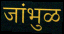
जांभुळ